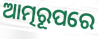
ଆତ୍ମରୂପରେ